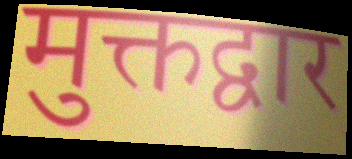
मुक्तद्वार